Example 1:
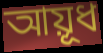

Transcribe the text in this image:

আয়ূধ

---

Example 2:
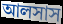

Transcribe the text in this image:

আলসাস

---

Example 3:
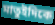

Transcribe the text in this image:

মাতুইদিকে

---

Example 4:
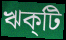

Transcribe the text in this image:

ঋক্‌টি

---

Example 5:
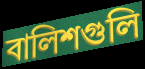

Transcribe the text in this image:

বালিশগুলি